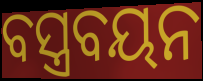
ବସ୍ତ୍ରବୟନ